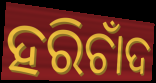
ହରିଚାଁଦ